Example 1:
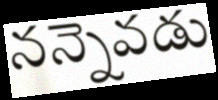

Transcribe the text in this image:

నన్నెవడు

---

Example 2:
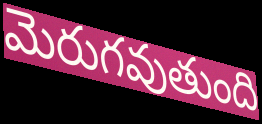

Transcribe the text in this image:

మెరుగవుతుంది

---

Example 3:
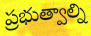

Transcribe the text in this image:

ప్రభుత్వాల్ని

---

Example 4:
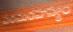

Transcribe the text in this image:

పరమరహస్యం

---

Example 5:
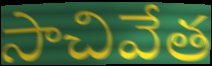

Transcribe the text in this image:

సాచివేత